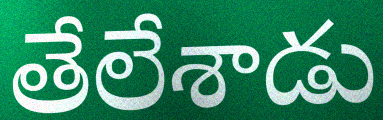
తేలేశాడు